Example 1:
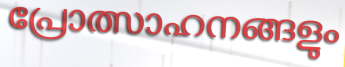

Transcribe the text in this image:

പ്രോത്സാഹനങ്ങളും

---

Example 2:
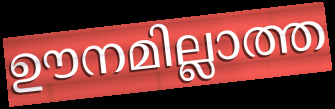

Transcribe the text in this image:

ഊനമില്ലാത്ത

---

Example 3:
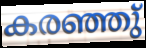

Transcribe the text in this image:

കരഞ്ഞു്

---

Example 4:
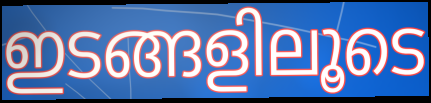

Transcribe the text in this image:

ഇടങ്ങളിലൂടെ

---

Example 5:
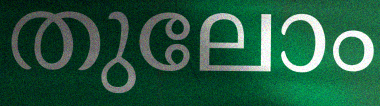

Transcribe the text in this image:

തുലോം